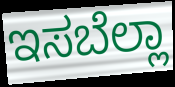
ಇಸಬೆಲ್ಲಾ